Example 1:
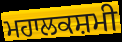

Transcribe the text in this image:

ਮਹਾਲਕਸ਼ਮੀ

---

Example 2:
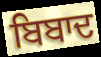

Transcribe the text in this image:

ਬਿਬਾਦ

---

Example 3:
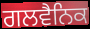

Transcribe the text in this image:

ਗਲਵੈਨਿਕ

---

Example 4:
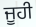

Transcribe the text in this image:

ਜੂਹੀ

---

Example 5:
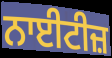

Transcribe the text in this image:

ਨਾਈਟੀਜ਼